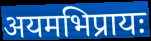
अयमभिप्रायः